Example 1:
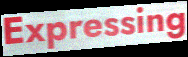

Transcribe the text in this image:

Expressing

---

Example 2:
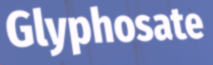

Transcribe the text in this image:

Glyphosate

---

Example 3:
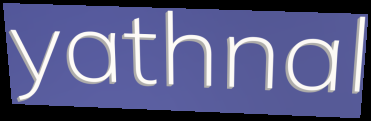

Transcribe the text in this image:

yathnal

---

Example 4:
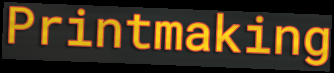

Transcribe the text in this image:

Printmaking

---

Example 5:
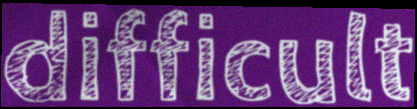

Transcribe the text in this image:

difficult